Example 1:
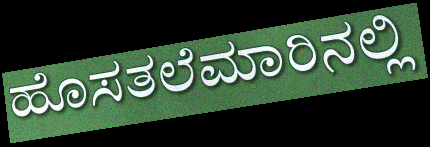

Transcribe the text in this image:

ಹೊಸತಲೆಮಾರಿನಲ್ಲಿ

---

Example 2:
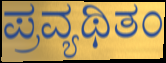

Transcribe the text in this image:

ಪ್ರವ್ಯಥಿತಂ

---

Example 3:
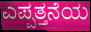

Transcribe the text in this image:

ಎಪ್ಪತ್ತನೆಯ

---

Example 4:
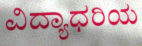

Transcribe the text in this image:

ವಿದ್ಯಾಧರಿಯ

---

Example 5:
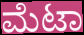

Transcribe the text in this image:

ಮೆಟಾ